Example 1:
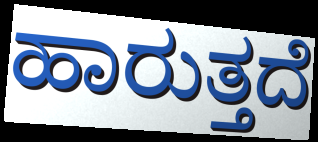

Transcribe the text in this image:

ಹಾರುತ್ತದೆ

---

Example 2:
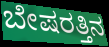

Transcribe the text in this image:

ಬೇಷರತ್ತಿನ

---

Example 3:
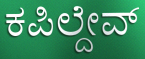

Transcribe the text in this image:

ಕಪಿಲ್ದೇವ್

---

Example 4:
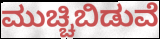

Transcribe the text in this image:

ಮುಚ್ಚಿಬಿಡುವೆ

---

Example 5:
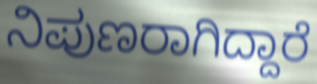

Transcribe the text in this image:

ನಿಪುಣರಾಗಿದ್ದಾರೆ